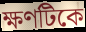
ক্ষণটিকে